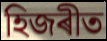
হিজৰীত